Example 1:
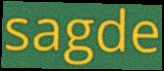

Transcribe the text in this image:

sagde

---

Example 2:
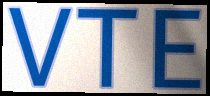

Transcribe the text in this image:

VTE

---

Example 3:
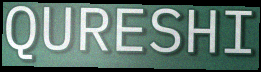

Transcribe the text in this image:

QURESHI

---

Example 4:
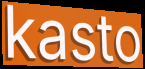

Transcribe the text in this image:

kasto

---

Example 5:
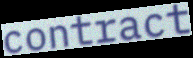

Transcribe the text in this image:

contract